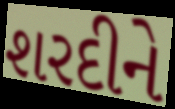
શરદીને